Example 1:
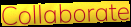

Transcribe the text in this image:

Collaborate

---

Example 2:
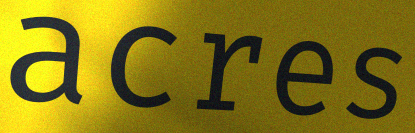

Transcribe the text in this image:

acres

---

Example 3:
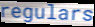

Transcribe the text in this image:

regulars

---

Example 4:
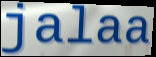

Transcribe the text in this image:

jalaa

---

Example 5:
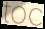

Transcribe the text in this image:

toc